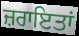
ਜ਼ਰਾਇਤਾਂ